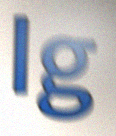
Ig